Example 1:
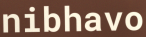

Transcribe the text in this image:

nibhavo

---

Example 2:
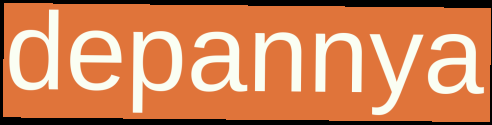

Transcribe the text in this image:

depannya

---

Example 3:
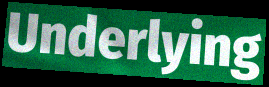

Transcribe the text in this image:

Underlying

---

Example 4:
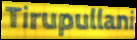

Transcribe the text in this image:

Tirupullani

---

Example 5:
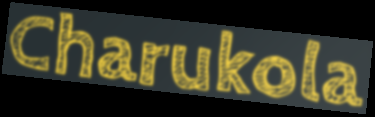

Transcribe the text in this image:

Charukola